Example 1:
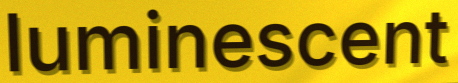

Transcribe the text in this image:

luminescent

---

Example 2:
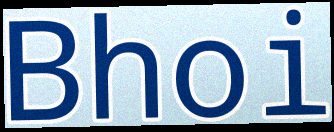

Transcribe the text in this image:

Bhoi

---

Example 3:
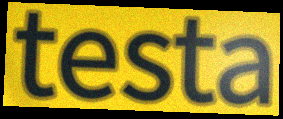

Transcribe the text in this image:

testa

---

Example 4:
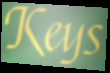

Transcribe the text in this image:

Keys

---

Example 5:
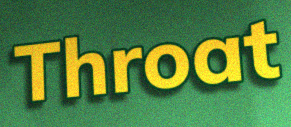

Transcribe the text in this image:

Throat